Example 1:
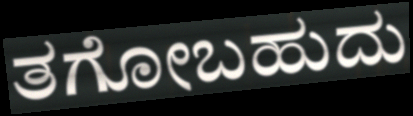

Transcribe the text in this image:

ತಗೋಬಹುದು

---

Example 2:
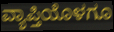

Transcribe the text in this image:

ವ್ಯಾಪ್ತಿಯೊಳಗೂ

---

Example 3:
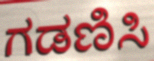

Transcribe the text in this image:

ಗಡಣಿಸಿ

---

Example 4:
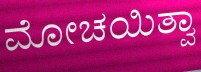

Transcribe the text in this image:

ಮೋಚಯಿತ್ವಾ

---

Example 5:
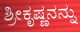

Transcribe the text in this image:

ಶ್ರೀಕೃಷ್ಣನನ್ನು